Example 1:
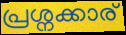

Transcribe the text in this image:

പ്രശ്നക്കാര്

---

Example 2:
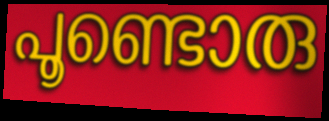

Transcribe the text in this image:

പൂണ്ടൊരു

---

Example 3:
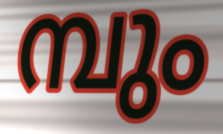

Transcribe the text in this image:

മ്പും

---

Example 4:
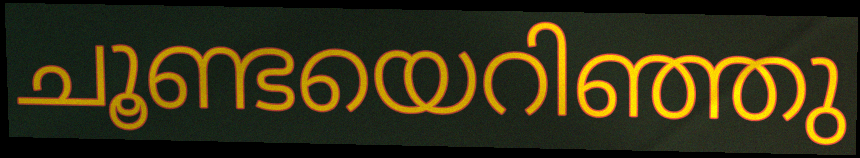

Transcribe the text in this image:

ചൂണ്ടയെറിഞ്ഞു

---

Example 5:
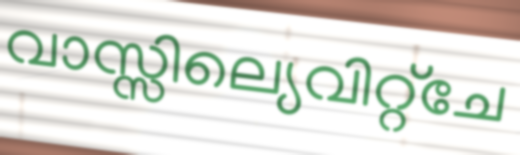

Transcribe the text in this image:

വാസ്സില്യെവിറ്റ്ചേ